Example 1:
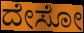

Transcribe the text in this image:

ದೇಸೋ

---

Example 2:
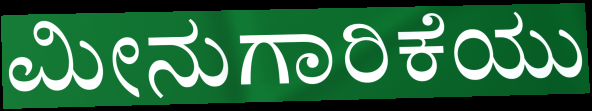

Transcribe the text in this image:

ಮೀನುಗಾರಿಕೆಯು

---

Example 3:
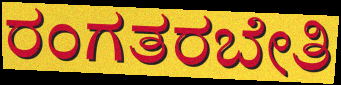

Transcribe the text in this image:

ರಂಗತರಬೇತಿ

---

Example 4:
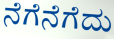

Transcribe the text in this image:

ನೆಗೆನೆಗೆದು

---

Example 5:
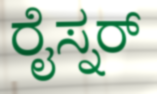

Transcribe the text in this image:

ರೈಸ್ನರ್